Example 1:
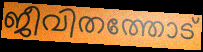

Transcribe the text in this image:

ജീവിതത്തോട്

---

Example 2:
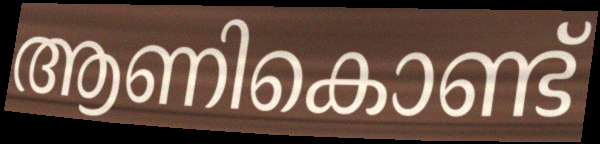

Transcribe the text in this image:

ആണികൊണ്ട്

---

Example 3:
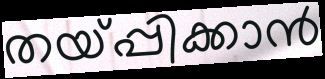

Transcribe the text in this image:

തയ്പ്പിക്കാൻ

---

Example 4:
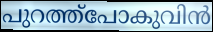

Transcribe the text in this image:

പുറത്ത്പോകുവിൻ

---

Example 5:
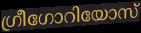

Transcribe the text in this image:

ഗ്രീഗോറിയോസ്